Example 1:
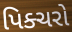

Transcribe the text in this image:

પિક્ચરો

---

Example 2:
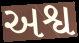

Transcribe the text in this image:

અશ્વ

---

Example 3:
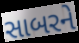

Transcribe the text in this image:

સાબરને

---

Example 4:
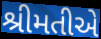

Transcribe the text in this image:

શ્રીમતીએ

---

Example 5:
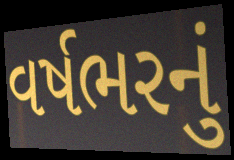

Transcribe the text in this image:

વર્ષભરનું